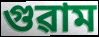
গুৱাম